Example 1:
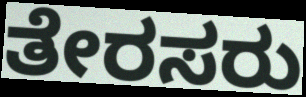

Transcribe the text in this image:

ತೇರಸರು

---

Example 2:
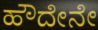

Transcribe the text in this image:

ಹೌದೇನೇ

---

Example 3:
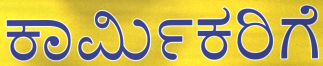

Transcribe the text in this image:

ಕಾರ್ಮಿಕರಿಗೆ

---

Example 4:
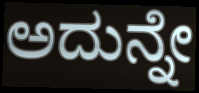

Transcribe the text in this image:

ಅದುನ್ನೇ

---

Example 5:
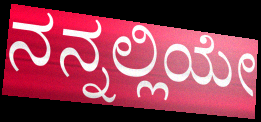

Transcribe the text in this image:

ನನ್ನಲ್ಲಿಯೇ